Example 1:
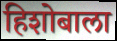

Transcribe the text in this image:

हिशोबाला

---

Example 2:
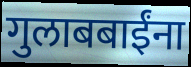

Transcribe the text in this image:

गुलाबबाईंना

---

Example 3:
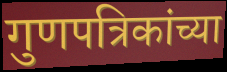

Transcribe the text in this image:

गुणपत्रिकांच्या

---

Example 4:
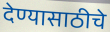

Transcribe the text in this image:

देण्यासाठीचे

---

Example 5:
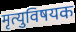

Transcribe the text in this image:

मृत्युविषयक